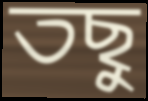
তছু